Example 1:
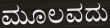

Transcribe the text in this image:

ಮೂಲವದು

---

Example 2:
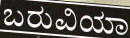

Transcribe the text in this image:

ಬರುವಿಯಾ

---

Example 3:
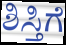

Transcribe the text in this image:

ಶಿಸ್ತಿಗೆ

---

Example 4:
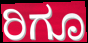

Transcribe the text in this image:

ರಿಗೂ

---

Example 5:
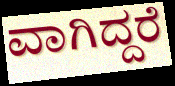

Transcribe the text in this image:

ವಾಗಿದ್ದರೆ